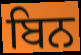
ਬਿਨ